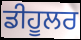
ਡੀਹੂਲਰ